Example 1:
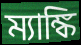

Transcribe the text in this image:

ম্যাঙ্কি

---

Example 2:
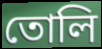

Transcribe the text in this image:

তোলি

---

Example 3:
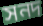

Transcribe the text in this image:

সনদ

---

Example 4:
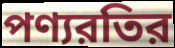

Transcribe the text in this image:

পণ্যরতির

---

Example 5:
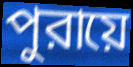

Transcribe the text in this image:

পুরায়ে